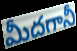
మీదగానీ